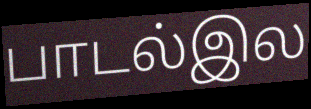
பாடல்இல